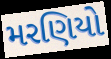
મરણિયો